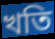
খতি